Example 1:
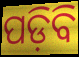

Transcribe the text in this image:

ପଡ଼ିବି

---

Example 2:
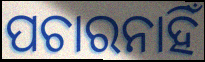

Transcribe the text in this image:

ପଚାରନାହିଁ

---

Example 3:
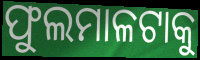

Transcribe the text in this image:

ଫୁଲମାଳଟାକୁ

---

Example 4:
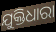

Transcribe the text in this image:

ଯୁକ୍ତିଧାରା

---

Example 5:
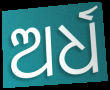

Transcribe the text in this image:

ଅର୍ଧ